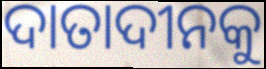
ଦାତାଦୀନକୁ